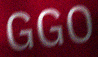
GGO